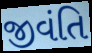
જીવંતિ